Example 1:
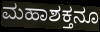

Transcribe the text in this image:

ಮಹಾಶಕ್ತನೂ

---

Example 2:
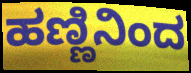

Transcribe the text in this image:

ಹಣ್ಣಿನಿಂದ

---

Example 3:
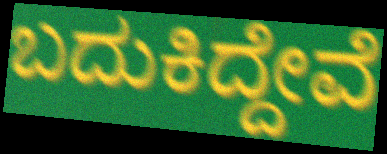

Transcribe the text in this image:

ಬದುಕಿದ್ದೇವೆ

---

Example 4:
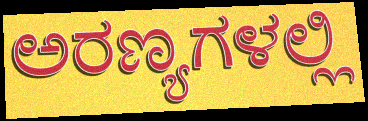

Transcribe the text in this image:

ಅರಣ್ಯಗಳಲ್ಲಿ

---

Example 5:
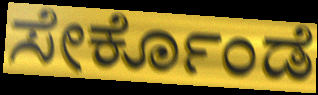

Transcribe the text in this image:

ಸೇರ್ಕೊಂಡೆ